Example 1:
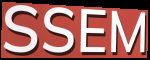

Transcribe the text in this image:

SSEM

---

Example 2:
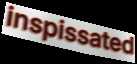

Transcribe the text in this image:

inspissated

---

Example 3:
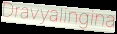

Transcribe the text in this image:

Dravyalingina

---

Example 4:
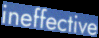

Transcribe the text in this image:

ineffective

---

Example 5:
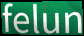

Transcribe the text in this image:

felun